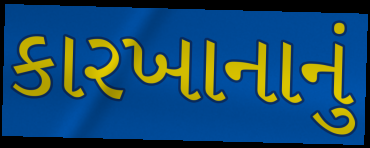
કારખાનાનું